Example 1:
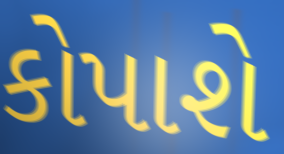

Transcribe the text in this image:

કોપાશે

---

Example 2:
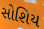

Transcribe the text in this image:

સોશિય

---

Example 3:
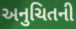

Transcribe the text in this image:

અનુચિતની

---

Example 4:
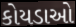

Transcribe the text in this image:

કોયડાઓ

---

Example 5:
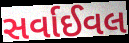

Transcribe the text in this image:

સર્વાઈવલ